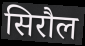
सिरौल